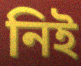
নিই